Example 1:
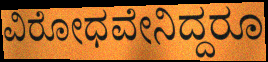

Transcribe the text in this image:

ವಿರೋಧವೇನಿದ್ದರೂ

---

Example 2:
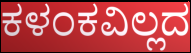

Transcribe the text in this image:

ಕಳಂಕವಿಲ್ಲದ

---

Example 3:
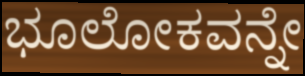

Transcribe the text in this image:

ಭೂಲೋಕವನ್ನೇ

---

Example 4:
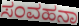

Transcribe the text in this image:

ಸಂವಹನಾ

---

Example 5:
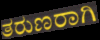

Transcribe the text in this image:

ತರುಣರಾಗಿ